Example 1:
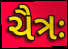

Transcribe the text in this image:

ચૈત્રઃ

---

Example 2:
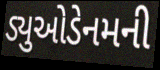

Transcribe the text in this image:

ડ્યુઓડેનમની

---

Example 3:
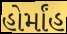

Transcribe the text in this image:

હોર્માંહ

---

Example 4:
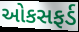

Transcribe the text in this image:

ઓકસફર્ડ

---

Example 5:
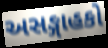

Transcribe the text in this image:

અસઙ્ગાહકો